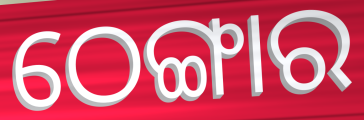
ଠେଙ୍ଗାର